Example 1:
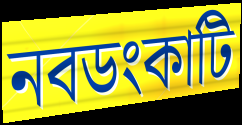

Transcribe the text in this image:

নবডংকাটি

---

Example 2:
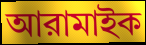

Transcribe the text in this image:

আরামাইক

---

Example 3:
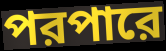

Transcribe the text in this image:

পরপারে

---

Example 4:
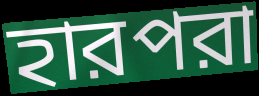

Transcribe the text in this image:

হারপরা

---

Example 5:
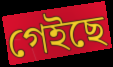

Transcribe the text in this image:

গেইছে